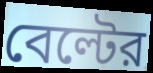
বেল্টের